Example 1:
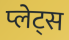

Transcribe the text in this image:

प्‍लेट्स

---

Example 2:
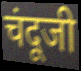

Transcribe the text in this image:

चंदूजी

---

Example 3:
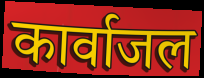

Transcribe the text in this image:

कार्वाजल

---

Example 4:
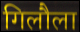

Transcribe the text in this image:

गिलौला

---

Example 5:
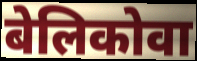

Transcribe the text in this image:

बेलिकोवा